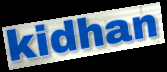
kidhan